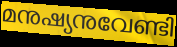
മനുഷ്യനുവേണ്ടി